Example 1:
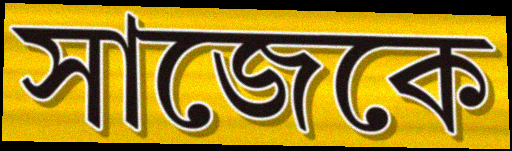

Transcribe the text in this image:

সাজেকে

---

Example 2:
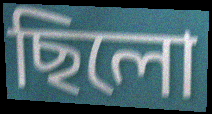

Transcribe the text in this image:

ছিলো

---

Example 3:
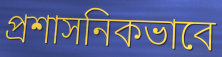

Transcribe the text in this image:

প্রশাসনিকভাবে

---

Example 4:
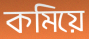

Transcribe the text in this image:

কমিয়ে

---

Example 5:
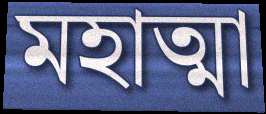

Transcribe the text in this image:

মহাত্মা